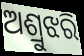
ଅଶ୍ରୁଝରି